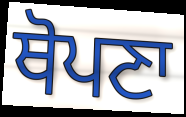
ਥੋਪਣਾ